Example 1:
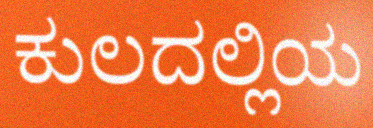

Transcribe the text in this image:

ಕುಲದಲ್ಲಿಯ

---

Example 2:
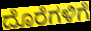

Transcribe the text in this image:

ದೊರೆಗಳಿಗೆ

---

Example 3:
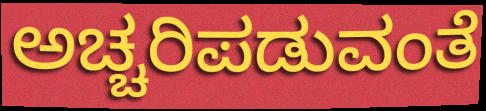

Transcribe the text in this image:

ಅಚ್ಚರಿಪಡುವಂತೆ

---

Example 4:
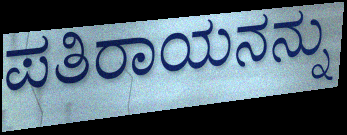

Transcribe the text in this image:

ಪತಿರಾಯನನ್ನು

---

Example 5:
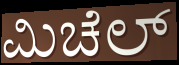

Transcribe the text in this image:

ಮಿಚೆಲ್